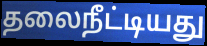
தலைநீட்டியது